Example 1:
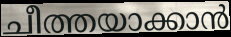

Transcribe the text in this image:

ചീത്തയാക്കാൻ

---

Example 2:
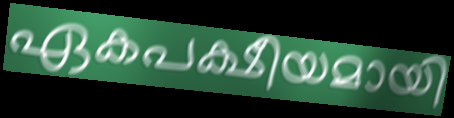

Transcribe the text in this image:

ഏകപക്ഷീയമായി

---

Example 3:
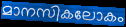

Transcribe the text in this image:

മാനസികലോകം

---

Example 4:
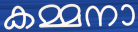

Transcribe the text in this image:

കമ്മനാ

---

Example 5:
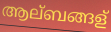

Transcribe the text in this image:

ആല്ബങ്ങള്